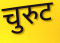
चुरुट